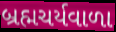
બ્રહ્મચર્યવાળા